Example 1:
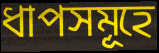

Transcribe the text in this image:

ধাপসমূহে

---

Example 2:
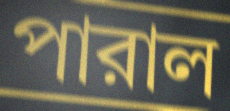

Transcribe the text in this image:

পারাল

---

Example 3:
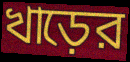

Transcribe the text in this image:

খাড়ের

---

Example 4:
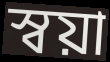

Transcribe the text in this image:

স্বয়া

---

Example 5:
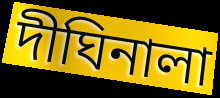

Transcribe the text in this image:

দীঘিনালা